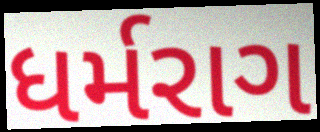
ધર્મરાગ